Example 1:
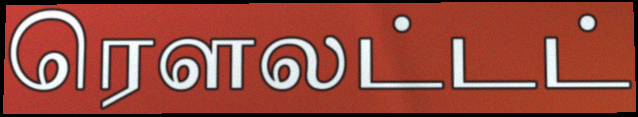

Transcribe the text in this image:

ரௌலட்டட்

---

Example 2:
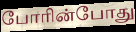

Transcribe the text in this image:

போரின்போது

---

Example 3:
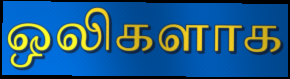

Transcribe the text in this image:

ஒலிகளாக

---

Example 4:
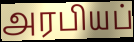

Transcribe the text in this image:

அரபியப்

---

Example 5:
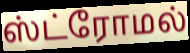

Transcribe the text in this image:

ஸ்ட்ரோமல்